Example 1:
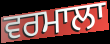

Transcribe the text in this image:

ਵਰਮਾਲਾ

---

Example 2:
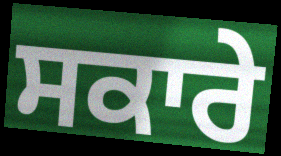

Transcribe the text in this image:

ਸਕਾਰੇ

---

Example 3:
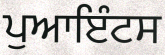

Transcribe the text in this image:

ਪੁਆਇੰਟਸ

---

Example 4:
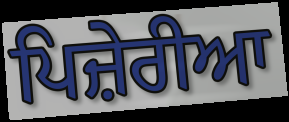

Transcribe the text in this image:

ਪਿਜ਼ੇਰੀਆ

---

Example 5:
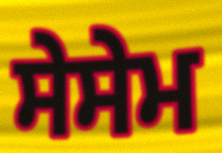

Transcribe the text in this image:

ਸੇਸੇਮ